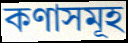
কণাসমূহ